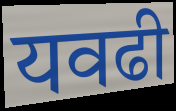
यवढी